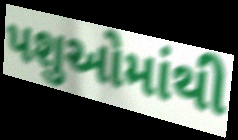
પશુઓમાંથી